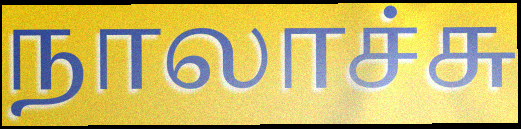
நாலாச்சு